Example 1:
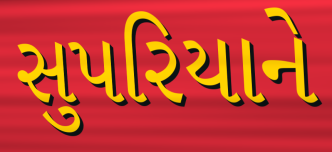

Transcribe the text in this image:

સુપરિયાને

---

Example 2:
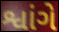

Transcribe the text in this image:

શ્વાંગે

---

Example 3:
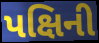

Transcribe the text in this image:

પક્ષિની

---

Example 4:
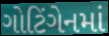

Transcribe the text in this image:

ગોટિંગેનમાં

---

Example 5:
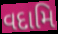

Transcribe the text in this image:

વદામિ